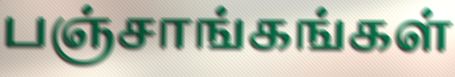
பஞ்சாங்கங்கள்